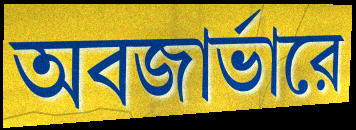
অবজার্ভারে